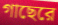
গাছেরে